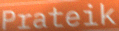
Prateik